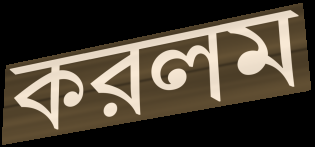
করলম